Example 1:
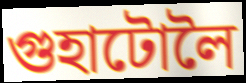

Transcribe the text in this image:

গুহাটোলৈ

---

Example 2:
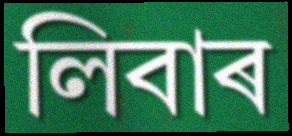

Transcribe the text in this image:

লিবাৰ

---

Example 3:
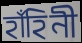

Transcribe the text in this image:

হাঁহিনী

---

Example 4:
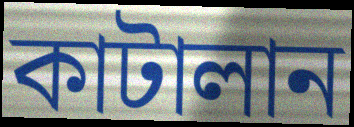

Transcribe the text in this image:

কাটালান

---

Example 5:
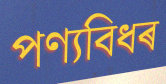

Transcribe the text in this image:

পণ্যবিধৰ